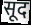
सूद